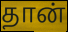
தான்